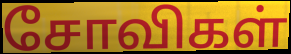
சோவிகள்